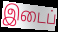
இடைப்